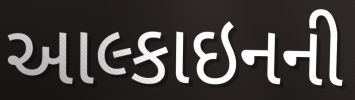
આલ્કાઇનની